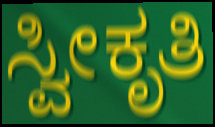
ಸ್ವೀಕೃತಿ